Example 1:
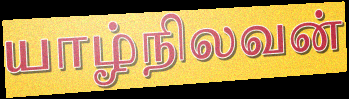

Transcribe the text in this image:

யாழ்நிலவன்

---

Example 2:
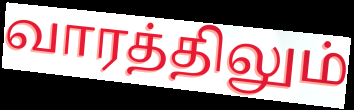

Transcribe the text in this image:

வாரத்திலும்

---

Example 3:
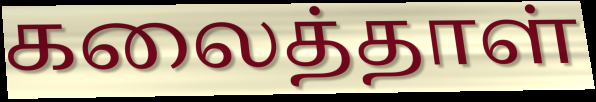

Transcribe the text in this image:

கலைத்தாள்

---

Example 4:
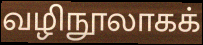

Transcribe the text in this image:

வழிநூலாகக்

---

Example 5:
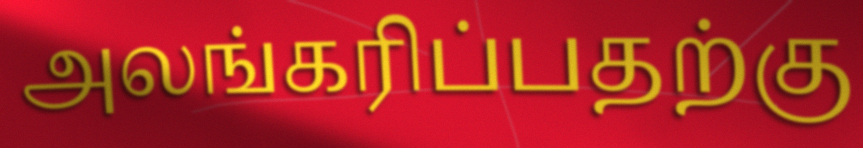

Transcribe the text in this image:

அலங்கரிப்பதற்கு